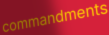
commandments